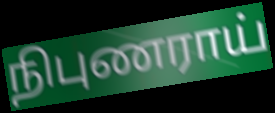
நிபுணராய்